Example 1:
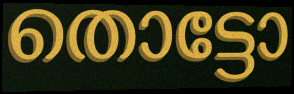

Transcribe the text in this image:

തൊട്ടോ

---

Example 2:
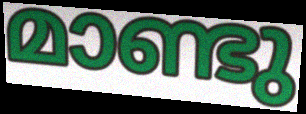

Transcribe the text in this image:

മാണ്ടു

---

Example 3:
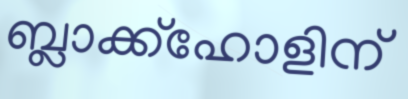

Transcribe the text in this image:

ബ്ലാക്ക്ഹോളിന്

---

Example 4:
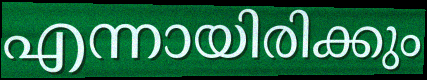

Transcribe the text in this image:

എന്നായിരിക്കും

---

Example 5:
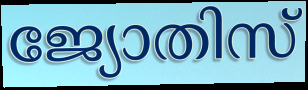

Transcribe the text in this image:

ജ്യോതിസ്